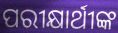
ପରୀକ୍ଷାର୍ଥୀଙ୍କ